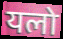
यलो